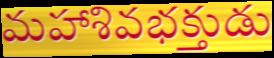
మహాశివభక్తుడు